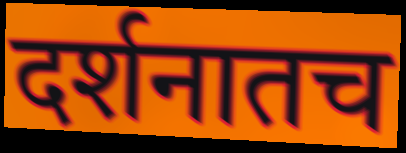
दर्शनातच